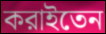
করাইতেন